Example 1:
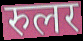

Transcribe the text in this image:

रुलर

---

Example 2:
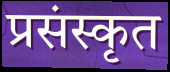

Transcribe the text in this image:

प्रसंस्कृत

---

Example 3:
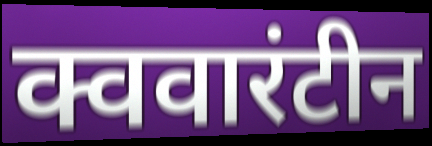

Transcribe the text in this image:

क्ववारंटीन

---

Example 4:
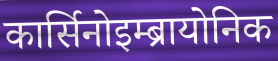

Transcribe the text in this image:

कार्सिनोइम्ब्रायोनिक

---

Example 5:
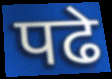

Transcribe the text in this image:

पढे